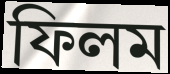
ফিলম